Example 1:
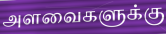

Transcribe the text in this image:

அளவைகளுக்கு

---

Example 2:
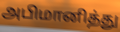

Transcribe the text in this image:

அபிமானித்து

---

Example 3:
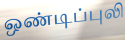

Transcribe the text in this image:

ஒண்டிப்புலி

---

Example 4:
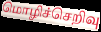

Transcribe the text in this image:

மொழிச்செறிவு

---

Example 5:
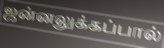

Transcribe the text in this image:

ஜன்னலுக்கப்பால்